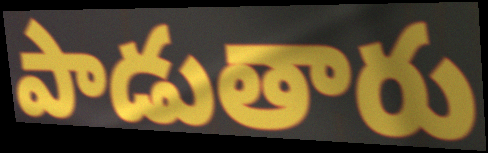
పాడుతారు